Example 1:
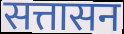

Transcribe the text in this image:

सत्तासन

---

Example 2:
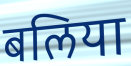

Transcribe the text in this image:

बलिया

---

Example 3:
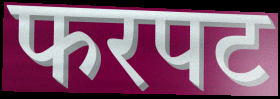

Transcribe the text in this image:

फरपट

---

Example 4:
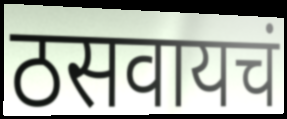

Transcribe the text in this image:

ठसवायचं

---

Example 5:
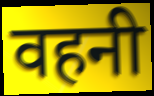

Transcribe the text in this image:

वहनी